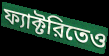
ফ্যাক্টরিতেও